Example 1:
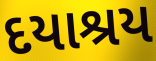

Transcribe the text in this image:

દયાશ્રય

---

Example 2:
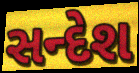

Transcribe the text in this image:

સન્દેશ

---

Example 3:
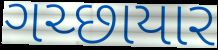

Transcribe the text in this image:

ગચ્છાયાર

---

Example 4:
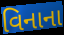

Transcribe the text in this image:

વિનાના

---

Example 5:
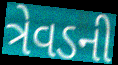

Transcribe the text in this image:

ત્રેવડની